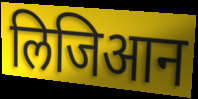
लिजिआन